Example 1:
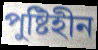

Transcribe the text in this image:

পুষ্টিহীন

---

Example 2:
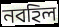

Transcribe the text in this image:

নবহিল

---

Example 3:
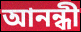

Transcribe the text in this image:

আনন্ধী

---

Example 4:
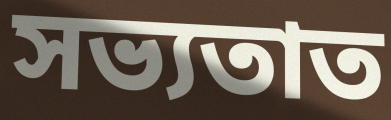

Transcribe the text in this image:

সভ্যতাত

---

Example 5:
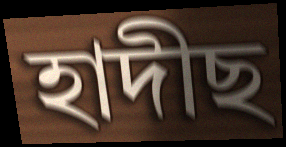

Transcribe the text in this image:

হাদীছ